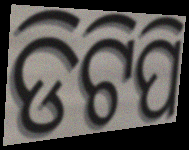
ଡିଟିପି